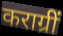
कराग्रीं